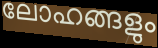
ലോഹങ്ങളും